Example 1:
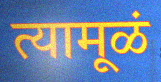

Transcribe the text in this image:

त्यामूळं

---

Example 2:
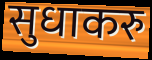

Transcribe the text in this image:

सुधाकरु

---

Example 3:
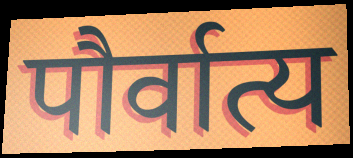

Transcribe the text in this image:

पौर्वात्य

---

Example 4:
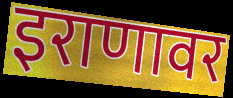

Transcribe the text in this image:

इराणावर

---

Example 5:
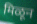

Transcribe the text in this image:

मिळून